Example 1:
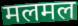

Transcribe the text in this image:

मलमल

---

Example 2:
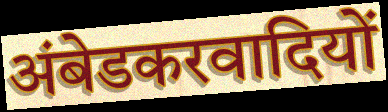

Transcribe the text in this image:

अंबेडकरवादियों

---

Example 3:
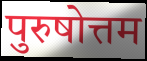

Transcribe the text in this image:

पुरुषोत्तम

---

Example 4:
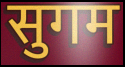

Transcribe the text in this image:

सुगम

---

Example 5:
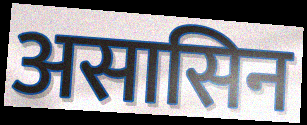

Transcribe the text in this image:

असासिन